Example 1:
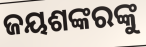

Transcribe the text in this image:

ଜୟଶଙ୍କରଙ୍କୁ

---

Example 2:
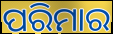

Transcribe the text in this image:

ପରିମାର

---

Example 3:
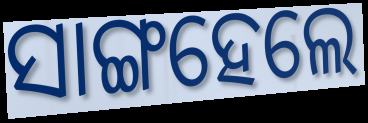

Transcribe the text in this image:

ସାଙ୍ଗହେଲେ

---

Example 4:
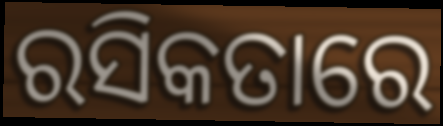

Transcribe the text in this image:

ରସିକତାରେ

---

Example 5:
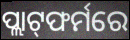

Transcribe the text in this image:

ପ୍ଲାଟ୍‌ଫର୍ମରେ